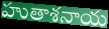
హుతాశనాయ